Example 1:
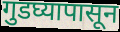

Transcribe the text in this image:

गुडघ्यापासून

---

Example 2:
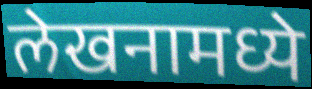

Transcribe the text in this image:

लेखनामध्ये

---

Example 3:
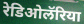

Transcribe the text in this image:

रेडिओलॅरिया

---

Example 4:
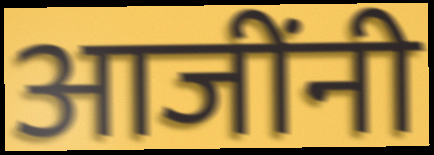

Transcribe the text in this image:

आजींनी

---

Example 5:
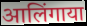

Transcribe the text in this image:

आलिंगाया